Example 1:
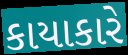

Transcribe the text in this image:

કાયાકારે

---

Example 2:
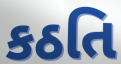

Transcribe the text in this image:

કઠતિ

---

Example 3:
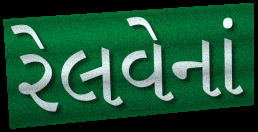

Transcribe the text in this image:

રેલવેનાં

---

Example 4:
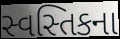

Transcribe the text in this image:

સ્વસ્તિકના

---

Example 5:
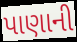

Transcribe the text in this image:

પાણાની